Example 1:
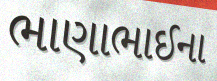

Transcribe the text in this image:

ભાણાભાઈના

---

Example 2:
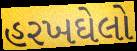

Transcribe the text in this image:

હરખઘેલો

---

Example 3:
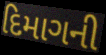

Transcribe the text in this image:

દિમાગની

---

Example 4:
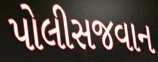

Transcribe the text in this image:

પોલીસજવાન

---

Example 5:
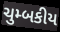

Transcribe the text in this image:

ચુમ્બકીય